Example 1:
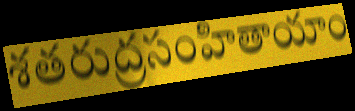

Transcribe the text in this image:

శతరుద్రసంహితాయాం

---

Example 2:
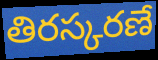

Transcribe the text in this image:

తిరస్కరణే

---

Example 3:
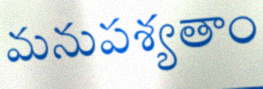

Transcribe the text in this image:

మనుపశ్యతాం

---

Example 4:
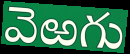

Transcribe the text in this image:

వెఱగు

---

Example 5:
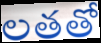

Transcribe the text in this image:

లతతో